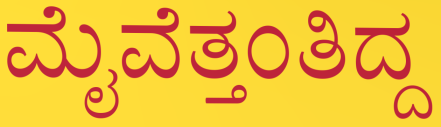
ಮೈವೆತ್ತಂತಿದ್ದ